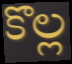
కొల్ల